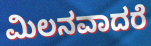
ಮಿಲನವಾದರೆ